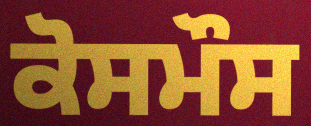
ਕੋਸਮੌਸ